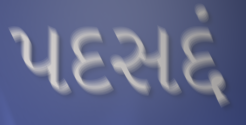
પદસદ્દં